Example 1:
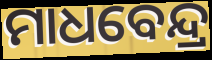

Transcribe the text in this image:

ମାଧବେନ୍ଦ୍ର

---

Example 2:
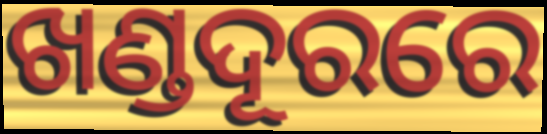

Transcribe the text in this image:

ଖଣ୍ଡଦୂରରେ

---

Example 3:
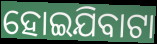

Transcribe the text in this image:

ହୋଇଯିବାଟା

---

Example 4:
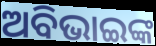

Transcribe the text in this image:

ଅବିଭାଇଙ୍କ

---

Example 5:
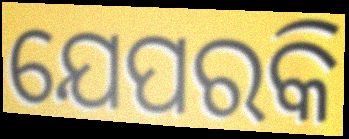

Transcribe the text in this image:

ଯେପରକି